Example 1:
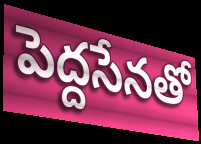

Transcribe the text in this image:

పెద్దసేనతో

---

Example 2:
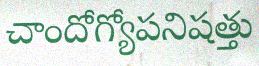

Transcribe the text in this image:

చాందోగ్యోపనిషత్తు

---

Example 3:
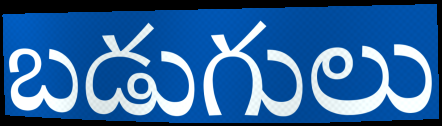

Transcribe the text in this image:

బడుగులు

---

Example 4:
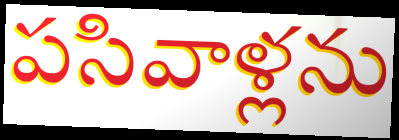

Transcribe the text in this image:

పసివాళ్లను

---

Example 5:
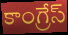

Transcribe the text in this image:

కాంగ్రేస్